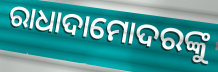
ରାଧାଦାମୋଦରଙ୍କୁ